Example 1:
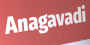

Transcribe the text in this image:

Anagavadi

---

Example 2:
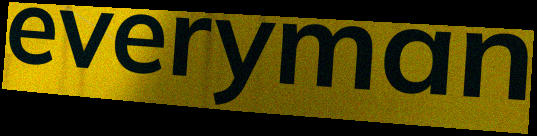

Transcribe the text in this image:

everyman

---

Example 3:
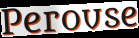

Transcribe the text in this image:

Perouse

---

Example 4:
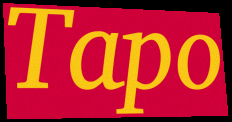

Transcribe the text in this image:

Tapo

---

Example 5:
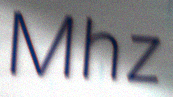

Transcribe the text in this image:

Mhz